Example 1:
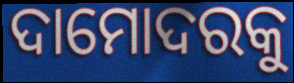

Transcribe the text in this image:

ଦାମୋଦରକୁ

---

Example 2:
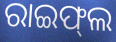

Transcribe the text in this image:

ରାଇଫ୍‌ଲ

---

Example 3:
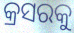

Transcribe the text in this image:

କ୍ରସରକୁ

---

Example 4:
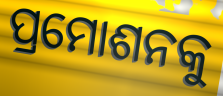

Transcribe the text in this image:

ପ୍ରମୋଶନକୁ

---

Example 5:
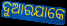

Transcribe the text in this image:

ଦୁଆରଯାକେ